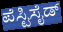
ಪೆಸ್ಟಿಸೈಡ್